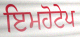
ਇਮਹੋਟੇਪ